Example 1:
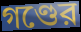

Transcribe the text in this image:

গণ্ডের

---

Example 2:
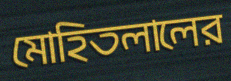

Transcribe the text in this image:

মোহিতলালের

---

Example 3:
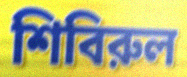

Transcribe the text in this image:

শিবিরুল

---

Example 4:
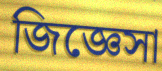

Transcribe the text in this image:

জিজ্ঞেসা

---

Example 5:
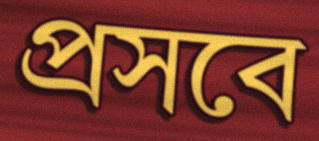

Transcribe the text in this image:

প্রসবে